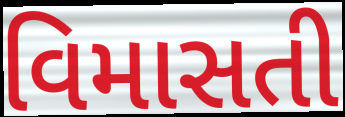
વિમાસતી